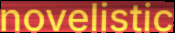
novelistic